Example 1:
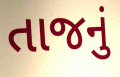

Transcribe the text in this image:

તાજનું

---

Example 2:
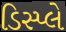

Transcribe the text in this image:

ડિસ્પ્લે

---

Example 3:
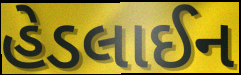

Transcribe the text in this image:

હેડલાઈન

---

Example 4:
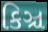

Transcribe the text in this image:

કિઞ્ચ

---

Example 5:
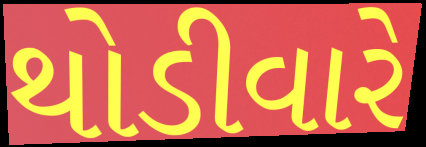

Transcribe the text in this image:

થોડીવારે